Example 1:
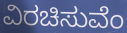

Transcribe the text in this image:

ವಿರಚಿಸುವೆಂ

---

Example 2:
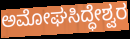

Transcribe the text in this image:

ಅಮೋಘಸಿದ್ಧೇಶ್ವರ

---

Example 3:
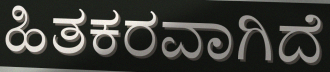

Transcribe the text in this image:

ಹಿತಕರವಾಗಿದೆ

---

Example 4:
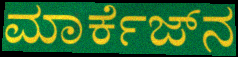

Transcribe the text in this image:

ಮಾರ್ಕೆಜ್‌ನ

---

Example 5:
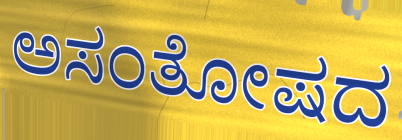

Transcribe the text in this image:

ಅಸಂತೋಷದ